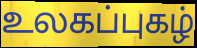
உலகப்புகழ்